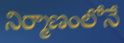
నిర్మాణంలోనే